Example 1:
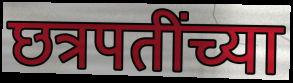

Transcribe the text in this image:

छत्रपतींच्या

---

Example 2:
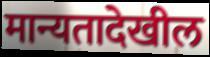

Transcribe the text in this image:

मान्यतादेखील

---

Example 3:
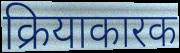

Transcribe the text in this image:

क्रियाकारक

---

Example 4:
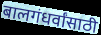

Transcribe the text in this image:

बालगंधर्वांसाठी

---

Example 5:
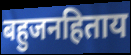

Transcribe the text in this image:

बहुजनहिताय